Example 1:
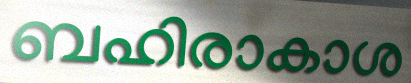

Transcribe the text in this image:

ബഹിരാകാശ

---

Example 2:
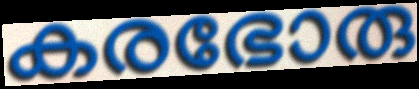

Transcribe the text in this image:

കരഭോരു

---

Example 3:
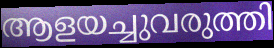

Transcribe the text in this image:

ആളയച്ചുവരുത്തി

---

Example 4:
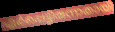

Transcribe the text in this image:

ഏർപ്പെട്ടിരുന്നതായി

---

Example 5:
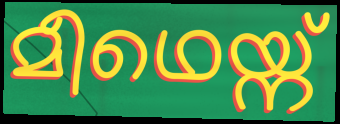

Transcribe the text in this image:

മീഥെയ്ന്